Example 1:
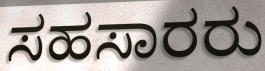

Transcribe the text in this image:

ಸಹಸಾರರು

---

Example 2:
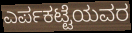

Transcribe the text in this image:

ಎರ್ಪಕಟ್ಟೆಯವರ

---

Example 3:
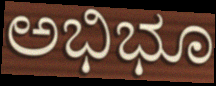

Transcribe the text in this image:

ಅಭಿಭೂ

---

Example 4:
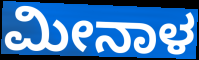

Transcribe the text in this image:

ಮೀನಾಳ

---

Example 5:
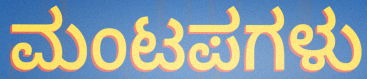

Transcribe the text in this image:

ಮಂಟಪಗಳು